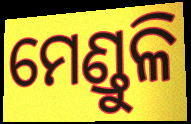
ମେଣ୍ଡୁଳି